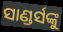
ସାଣ୍ଡର୍ସଙ୍କୁ